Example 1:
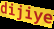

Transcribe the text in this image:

dijiye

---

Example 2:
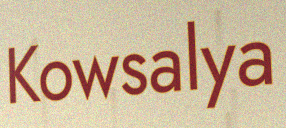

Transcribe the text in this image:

Kowsalya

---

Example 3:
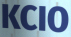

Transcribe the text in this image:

KCIO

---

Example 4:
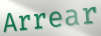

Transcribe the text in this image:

Arrear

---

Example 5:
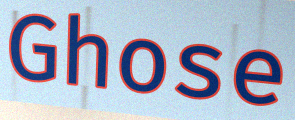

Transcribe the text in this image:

Ghose